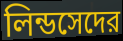
লিন্ডসেদের